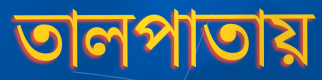
তালপাতায়